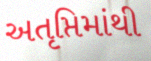
અતૃપ્તિમાંથી